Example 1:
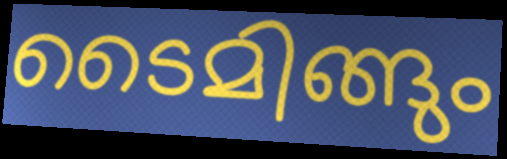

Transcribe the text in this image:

ടൈമിങ്ങും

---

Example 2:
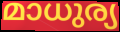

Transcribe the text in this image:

മാധുര്യ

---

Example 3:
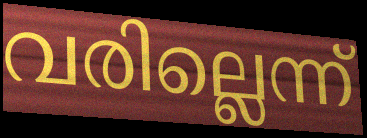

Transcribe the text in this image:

വരില്ലെന്ന്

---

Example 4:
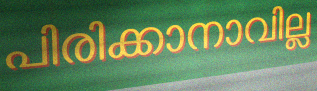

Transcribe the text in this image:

പിരിക്കാനാവില്ല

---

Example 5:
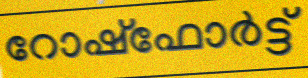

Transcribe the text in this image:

റോഷ്ഫോർട്ട്